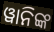
ୱାନିଙ୍କ